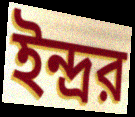
ইন্দ্রর